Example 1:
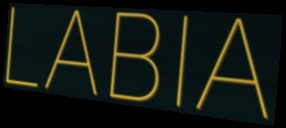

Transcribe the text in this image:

LABIA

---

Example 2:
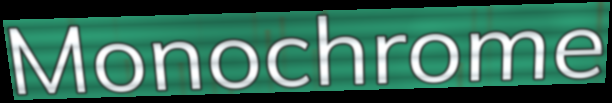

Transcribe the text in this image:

Monochrome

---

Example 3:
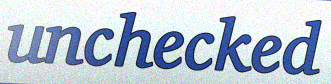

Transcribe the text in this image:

unchecked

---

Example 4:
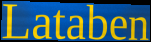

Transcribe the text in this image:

Lataben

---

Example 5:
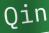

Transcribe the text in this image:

Qin